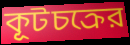
কূটচক্রের